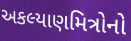
અકલ્યાણમિત્રોનો